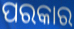
ପରକାର